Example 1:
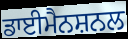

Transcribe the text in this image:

ਡਾਈਮੈਨਸ਼ਨਲ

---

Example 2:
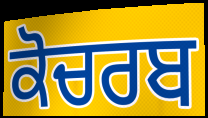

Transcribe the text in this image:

ਕੋਚਰਬ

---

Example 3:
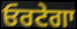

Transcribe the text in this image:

ਓਰਟੇਗਾ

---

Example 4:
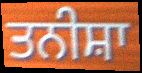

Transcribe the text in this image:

ਤਨੀਸ਼ਾ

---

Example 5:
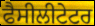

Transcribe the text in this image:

ਫੈਸੀਲੀਟੇਟਰ